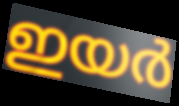
ഇയർ